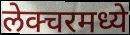
लेक्चरमध्ये